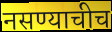
नसण्याचीच